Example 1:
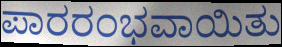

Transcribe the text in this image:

ಪಾರರಂಭವಾಯಿತು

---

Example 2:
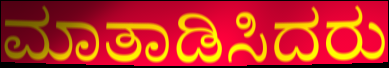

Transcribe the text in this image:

ಮಾತಾಡಿಸಿದರು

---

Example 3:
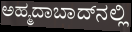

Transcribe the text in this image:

ಅಹ್ಮದಾಬಾದ್‍ನಲ್ಲಿ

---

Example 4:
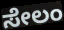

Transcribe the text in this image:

ಸೇಲಂ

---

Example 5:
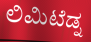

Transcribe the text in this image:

ಲಿಮಿಟೆಡ್ನ